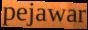
pejawar